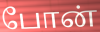
போன்